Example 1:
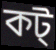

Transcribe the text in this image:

কট্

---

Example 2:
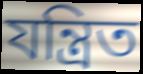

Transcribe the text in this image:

যন্ত্রিত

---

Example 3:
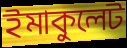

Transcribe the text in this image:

ইমাকুলেট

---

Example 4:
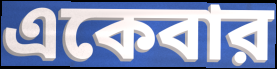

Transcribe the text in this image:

একেবার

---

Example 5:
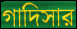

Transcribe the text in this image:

গাদিসার